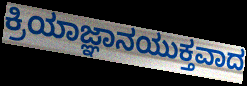
ಕ್ರಿಯಾಜ್ಞಾನಯುಕ್ತವಾದ